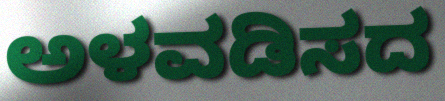
ಅಳವಡಿಸದ